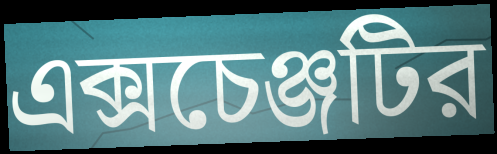
এক্সচেঞ্জটির